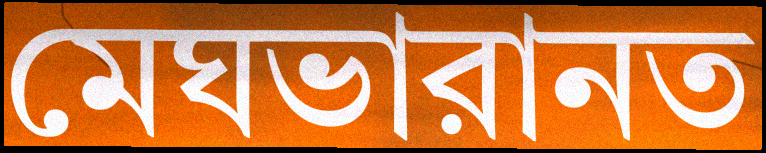
মেঘভারানত